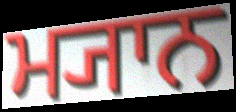
ਮ੍ਯਾਨ